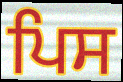
ਪਿਸ